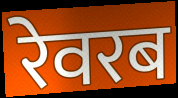
रेवरब